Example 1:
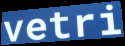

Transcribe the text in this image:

vetri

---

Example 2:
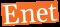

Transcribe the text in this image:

Enet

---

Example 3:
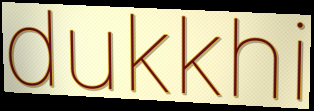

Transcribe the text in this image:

dukkhi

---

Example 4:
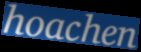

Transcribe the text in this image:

hoachen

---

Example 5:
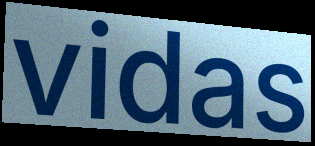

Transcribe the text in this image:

vidas